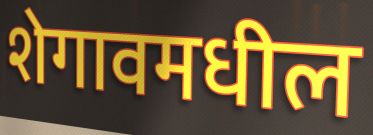
शेगावमधील